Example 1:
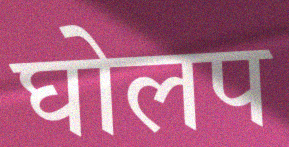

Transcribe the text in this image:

घोलप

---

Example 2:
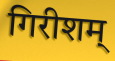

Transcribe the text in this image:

गिरीशम्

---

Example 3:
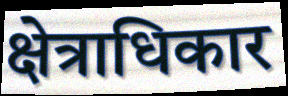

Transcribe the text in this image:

क्षेत्राधिकार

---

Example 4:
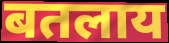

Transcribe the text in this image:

बतलाय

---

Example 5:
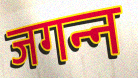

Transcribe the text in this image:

जगन्न